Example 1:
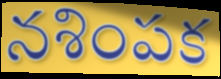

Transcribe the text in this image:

నశింపక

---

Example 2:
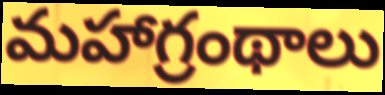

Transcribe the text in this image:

మహాగ్రంథాలు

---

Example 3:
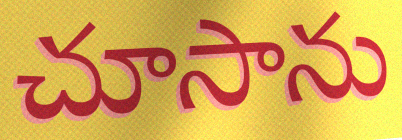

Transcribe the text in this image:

చూసాను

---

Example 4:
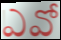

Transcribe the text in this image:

ఎవో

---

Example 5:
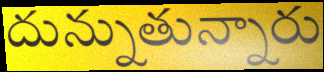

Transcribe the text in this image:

దున్నుతున్నారు